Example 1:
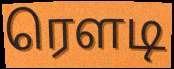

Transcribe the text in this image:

ரௌடி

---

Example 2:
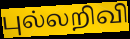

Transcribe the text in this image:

புல்லறிவி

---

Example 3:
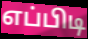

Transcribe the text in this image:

எப்பிடி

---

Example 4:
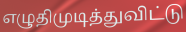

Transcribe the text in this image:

எழுதிமுடித்துவிட்டு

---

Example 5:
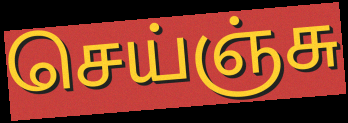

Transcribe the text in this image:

செய்ஞ்சு